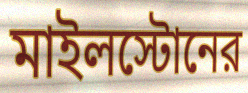
মাইলস্টোনের